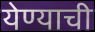
येण्याची